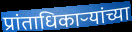
प्रांताधिकाऱ्यांच्या